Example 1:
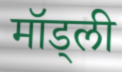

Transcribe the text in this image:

मॉड्ली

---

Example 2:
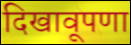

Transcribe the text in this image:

दिखावूपणा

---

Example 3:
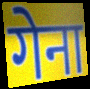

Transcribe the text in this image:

गेना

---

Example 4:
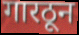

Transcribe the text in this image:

गारठून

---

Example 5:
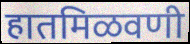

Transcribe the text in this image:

हातमिळवणी